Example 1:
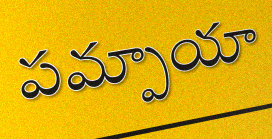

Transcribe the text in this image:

పమ్పాయా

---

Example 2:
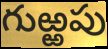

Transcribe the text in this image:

గుఱ్ఱపు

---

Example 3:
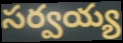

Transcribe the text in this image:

సర్వయ్య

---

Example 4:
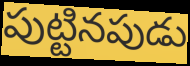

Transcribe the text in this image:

పుట్టినపుడు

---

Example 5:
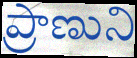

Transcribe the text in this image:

ప్రాణుని